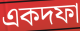
একদফা